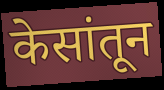
केसांतून